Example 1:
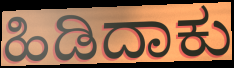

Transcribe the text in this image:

ಹಿಡಿದಾಕು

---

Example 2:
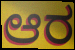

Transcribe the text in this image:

ಆರ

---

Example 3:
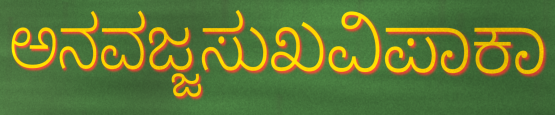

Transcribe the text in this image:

ಅನವಜ್ಜಸುಖವಿಪಾಕಾ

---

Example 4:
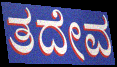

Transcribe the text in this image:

ತದೇವ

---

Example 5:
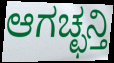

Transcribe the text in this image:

ಆಗಚ್ಛನ್ತಿ